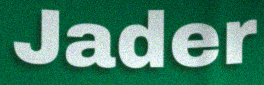
Jader